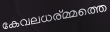
കേവലധര്മ്മത്തെ